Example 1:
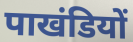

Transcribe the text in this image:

पाखंडियों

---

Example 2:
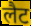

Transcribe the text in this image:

लैट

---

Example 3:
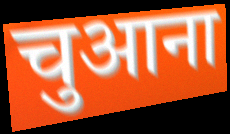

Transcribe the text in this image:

चुआना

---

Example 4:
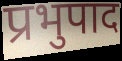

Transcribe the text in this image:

प्रभुपाद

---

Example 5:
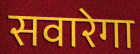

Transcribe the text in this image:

सवारेगा